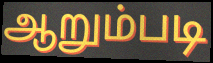
ஆறும்படி